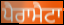
ਪੈਰਾਮੈਟਾ